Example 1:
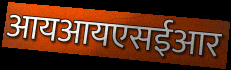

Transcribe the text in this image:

आयआयएसईआर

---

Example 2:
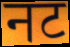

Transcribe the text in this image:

नट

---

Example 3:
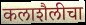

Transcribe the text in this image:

कलाशैलीचा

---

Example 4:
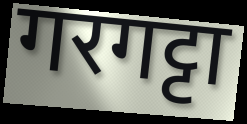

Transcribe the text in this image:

गरगट्टा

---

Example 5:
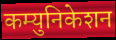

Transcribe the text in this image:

कम्युनिकेशन